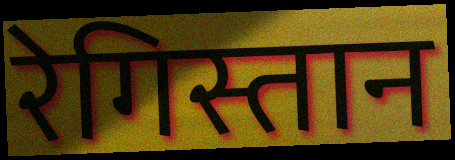
रेगिस्तान